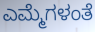
ಎಮ್ಮೆಗಳಂತೆ